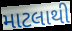
માટલાથી